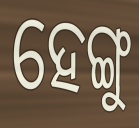
ହେଙ୍ଗୁ